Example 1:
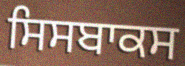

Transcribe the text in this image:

ਸਿਸਬਾਕਸ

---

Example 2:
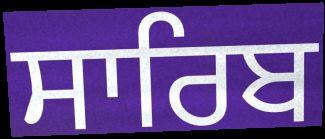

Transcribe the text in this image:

ਸਾਰਿਬ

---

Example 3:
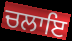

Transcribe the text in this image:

ਚਲਾਇ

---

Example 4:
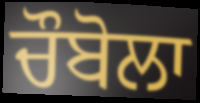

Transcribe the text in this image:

ਚੌਬੋਲਾ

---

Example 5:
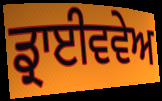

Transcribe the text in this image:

ਡ੍ਰਾਈਵਵੇਅ